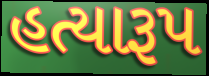
હત્યારૂપ